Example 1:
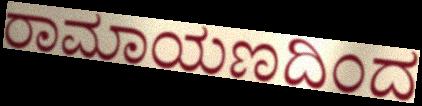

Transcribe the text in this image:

ರಾಮಾಯಣದಿಂದ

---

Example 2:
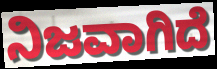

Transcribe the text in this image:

ನಿಜವಾಗಿದೆ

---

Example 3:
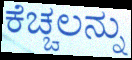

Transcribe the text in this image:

ಕೆಚ್ಚಲನ್ನು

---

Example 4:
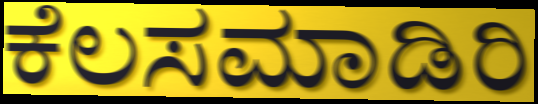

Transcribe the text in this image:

ಕೆಲಸಮಾಡಿರಿ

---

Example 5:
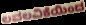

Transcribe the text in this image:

ಲವಲವಿಕೆಯಿಂದ